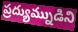
ప్రద్యుమ్నుడిని